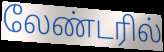
லேண்டரில்